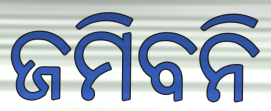
ଜମିବନି